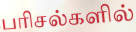
பரிசல்களில்